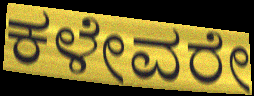
ಕಳೇವರೇ